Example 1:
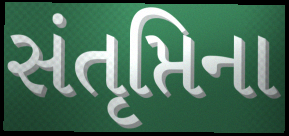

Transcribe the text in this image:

સંતૃપ્તિના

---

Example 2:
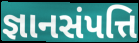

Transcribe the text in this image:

જ્ઞાનસંપત્તિ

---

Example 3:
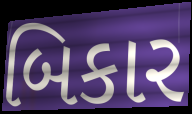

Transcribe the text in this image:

બિકાર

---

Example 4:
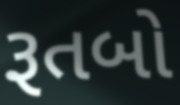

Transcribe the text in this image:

રૂતબો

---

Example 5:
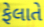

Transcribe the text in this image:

ફેલાતે